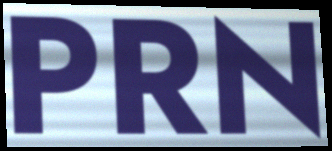
PRN